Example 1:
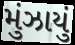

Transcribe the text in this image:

મુંઝાયું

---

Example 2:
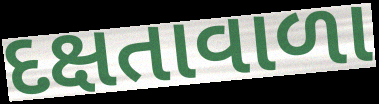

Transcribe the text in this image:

દક્ષતાવાળા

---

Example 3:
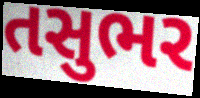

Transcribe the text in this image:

તસુભર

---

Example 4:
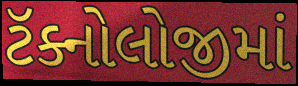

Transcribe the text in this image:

ટૅક્નોલોજીમાં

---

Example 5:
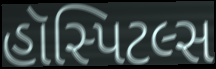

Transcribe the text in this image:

હૉસ્પિટલ્સ